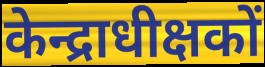
केन्द्राधीक्षकों